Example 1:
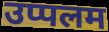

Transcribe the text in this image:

उप्पलम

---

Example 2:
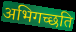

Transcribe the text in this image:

अभिगच्छति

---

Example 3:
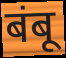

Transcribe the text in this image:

बंबू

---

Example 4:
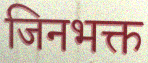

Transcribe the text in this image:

जिनभक्त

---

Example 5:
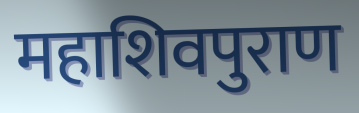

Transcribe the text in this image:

महाशिवपुराण